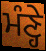
ਮੰਣ੍ਹੇ